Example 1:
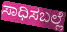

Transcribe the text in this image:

ಸಾಧಿಸಬಲ್ಲೆ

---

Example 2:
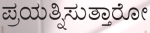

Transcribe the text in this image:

ಪ್ರಯತ್ನಿಸುತ್ತಾರೋ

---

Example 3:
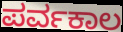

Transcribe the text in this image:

ಪರ್ವಕಾಲ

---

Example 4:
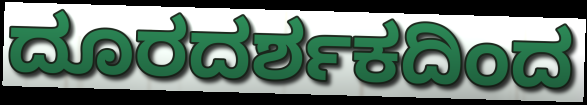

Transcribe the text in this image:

ದೂರದರ್ಶಕದಿಂದ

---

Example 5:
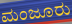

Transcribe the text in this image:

ಮಂಜೂರು